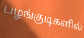
பழங்குடிகளில்